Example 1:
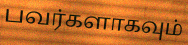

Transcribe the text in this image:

பவர்களாகவும்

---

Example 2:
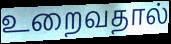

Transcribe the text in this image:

உறைவதால்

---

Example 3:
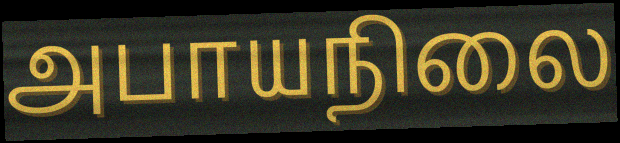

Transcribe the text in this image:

அபாயநிலை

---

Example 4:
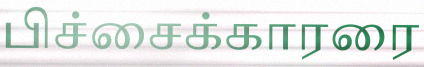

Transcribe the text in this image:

பிச்சைக்காரரை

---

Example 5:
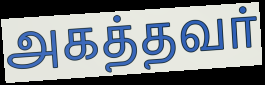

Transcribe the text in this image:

அகத்தவர்